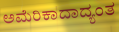
ಅಮೆರಿಕಾದಾದ್ಯಂತ